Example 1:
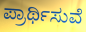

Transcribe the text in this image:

ಪ್ರಾರ್ಥಿಸುವೆ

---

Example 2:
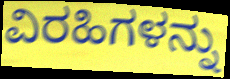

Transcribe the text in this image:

ವಿರಹಿಗಳನ್ನು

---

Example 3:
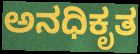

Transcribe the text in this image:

ಅನಧಿಕೃತ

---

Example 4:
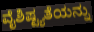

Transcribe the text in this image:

ವೈಶಿಷ್ಟ್ಯತೆಯನ್ನು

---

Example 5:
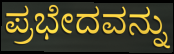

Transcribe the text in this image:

ಪ್ರಭೇದವನ್ನು